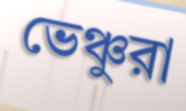
ভেঞ্চুরা